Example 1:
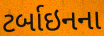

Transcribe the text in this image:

ટર્બાઇનના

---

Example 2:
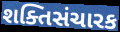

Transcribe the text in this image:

શક્તિસંચારક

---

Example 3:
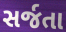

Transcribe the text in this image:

સર્જતા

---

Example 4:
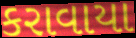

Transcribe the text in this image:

કરાવાયા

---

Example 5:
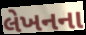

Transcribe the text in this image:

લેખનના